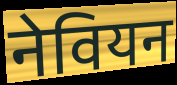
नेवियन